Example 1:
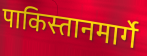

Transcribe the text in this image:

पाकिस्तानमार्गे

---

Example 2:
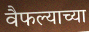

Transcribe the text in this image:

वैफल्याच्या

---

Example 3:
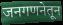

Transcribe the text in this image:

जनगणनेतून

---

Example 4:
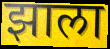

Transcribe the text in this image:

झाला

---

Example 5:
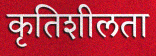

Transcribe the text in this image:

कृतिशीलता